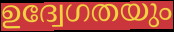
ഉദ്വേഗതയും